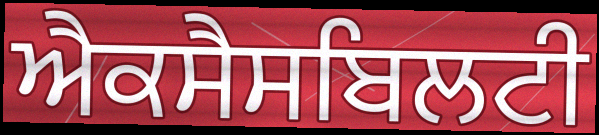
ਐਕਸੈਸਬਿਲਟੀ